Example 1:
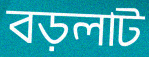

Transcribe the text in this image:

বড়লাট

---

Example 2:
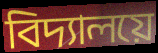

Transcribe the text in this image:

বিদ্যালয়ে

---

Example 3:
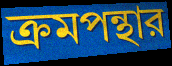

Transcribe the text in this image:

ক্রমপন্থার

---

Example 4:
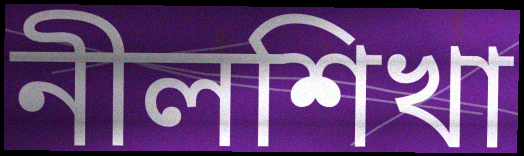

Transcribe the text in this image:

নীলশিখা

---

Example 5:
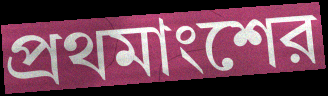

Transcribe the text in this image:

প্রথমাংশের